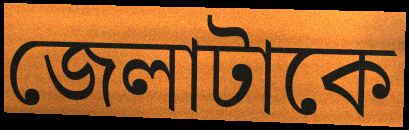
জেলাটাকে